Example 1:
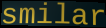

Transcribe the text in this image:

smilar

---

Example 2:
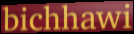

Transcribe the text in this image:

bichhawi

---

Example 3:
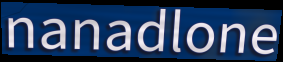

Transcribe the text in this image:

nanadlone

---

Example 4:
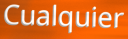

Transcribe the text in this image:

Cualquier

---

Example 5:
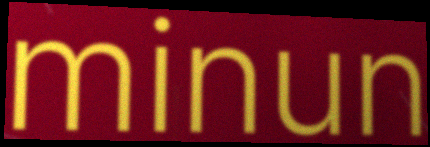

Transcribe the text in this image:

minun